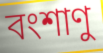
বংশাণু